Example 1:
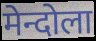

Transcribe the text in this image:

मेन्दोला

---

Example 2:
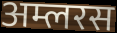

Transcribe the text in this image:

अम्लरस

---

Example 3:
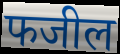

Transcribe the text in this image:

फजील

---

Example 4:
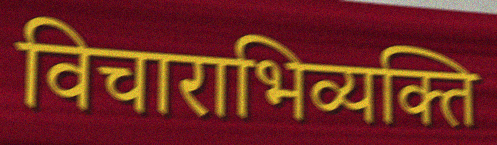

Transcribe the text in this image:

विचाराभिव्यक्ति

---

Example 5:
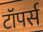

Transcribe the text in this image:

टॉपर्स